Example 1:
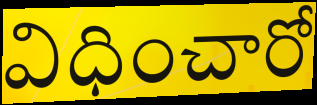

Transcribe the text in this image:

విధించారో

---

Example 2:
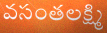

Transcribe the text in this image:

వసంతలక్ష్మి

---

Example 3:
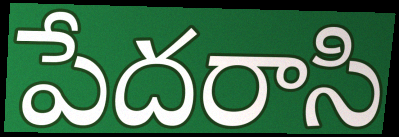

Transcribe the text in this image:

పేదరాసి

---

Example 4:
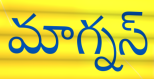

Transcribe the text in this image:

మాగ్నస్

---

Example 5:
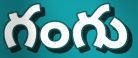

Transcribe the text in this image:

గంగు